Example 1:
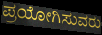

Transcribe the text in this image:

ಪ್ರಯೋಗಿಸುವರು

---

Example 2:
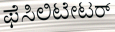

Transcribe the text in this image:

ಫೆಸಿಲಿಟೇಟರ್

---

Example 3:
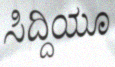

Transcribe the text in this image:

ಸಿದ್ದಿಯೂ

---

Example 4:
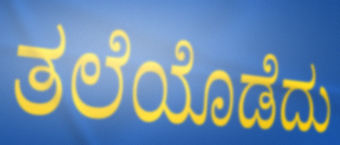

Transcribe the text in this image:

ತಲೆಯೊಡೆದು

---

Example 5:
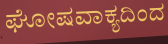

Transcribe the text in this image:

ಘೋಷವಾಕ್ಯದಿಂದ